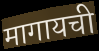
मागायची